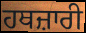
ਹਥਜ਼ਾਰੀ